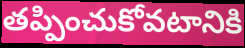
తప్పించుకోవటానికి